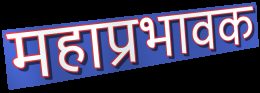
महाप्रभावक